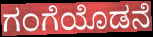
ಗಂಗೆಯೊಡನೆ